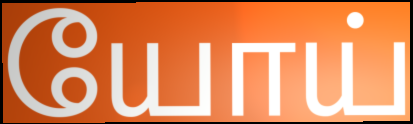
யோய்